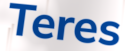
Teres